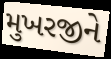
મુખરજીને